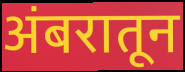
अंबरातून